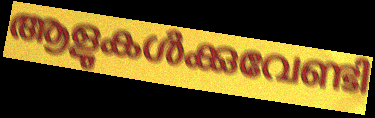
ആളുകൾക്കുവേണ്ടി